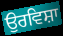
ਉਰਵਿਸ਼ਾ